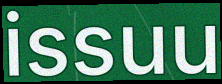
issuu